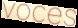
voces